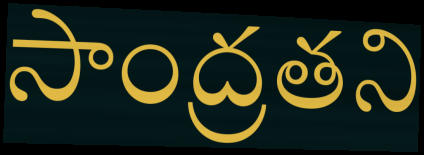
సాంద్రతని